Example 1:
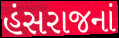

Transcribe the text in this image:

હંસરાજનાં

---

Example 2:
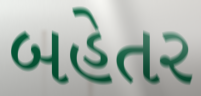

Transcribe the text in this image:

બહેતર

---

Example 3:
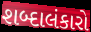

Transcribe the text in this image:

શબ્દાલંકારો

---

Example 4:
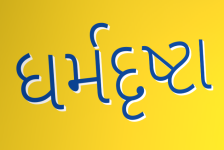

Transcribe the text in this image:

ધર્મદૃષ્ટા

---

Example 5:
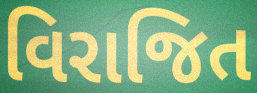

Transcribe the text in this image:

વિરાજિત